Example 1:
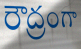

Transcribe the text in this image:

రౌద్రంగా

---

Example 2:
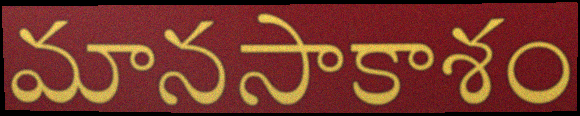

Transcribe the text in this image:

మానసాకాశం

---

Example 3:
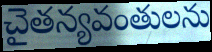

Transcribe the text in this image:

చైతన్యవంతులను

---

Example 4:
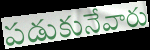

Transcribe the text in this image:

పడుకునేవారు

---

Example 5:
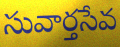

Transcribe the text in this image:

సువార్తసేవ